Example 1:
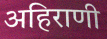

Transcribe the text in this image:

अहिराणी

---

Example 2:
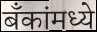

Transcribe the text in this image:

बँकांमध्ये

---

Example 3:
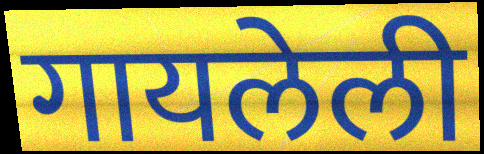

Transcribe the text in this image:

गायलेली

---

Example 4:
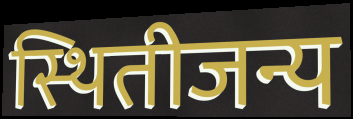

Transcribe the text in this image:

स्थितीजन्य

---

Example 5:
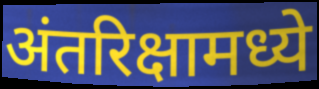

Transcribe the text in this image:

अंतरिक्षामध्ये